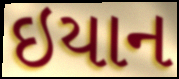
ઇયાન